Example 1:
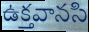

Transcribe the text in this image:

ఉక్తవానసి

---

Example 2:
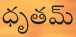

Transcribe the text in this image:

ధృతమ్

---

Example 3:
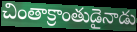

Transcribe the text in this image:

చింతాక్రాంతుడైనాడు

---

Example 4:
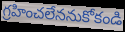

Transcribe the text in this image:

గ్రహించలేననుకోకండి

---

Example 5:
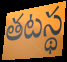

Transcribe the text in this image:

తటస్థ